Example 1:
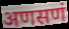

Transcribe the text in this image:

अणसणं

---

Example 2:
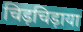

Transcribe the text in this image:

चिड़चिड़ाया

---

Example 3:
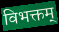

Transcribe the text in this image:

विभक्तम्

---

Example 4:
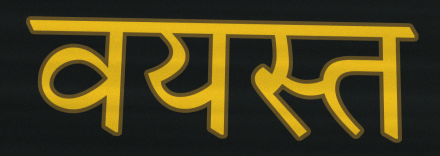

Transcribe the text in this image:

वयस्त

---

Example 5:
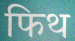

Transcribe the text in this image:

फिथ